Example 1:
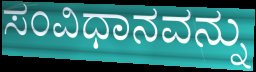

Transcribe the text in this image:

ಸಂವಿಧಾನವನ್ನು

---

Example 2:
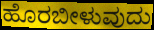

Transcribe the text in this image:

ಹೊರಬೀಳುವುದು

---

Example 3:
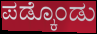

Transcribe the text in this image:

ಪಡ್ಕೊಂಡು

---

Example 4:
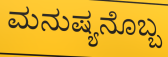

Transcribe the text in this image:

ಮನುಷ್ಯನೊಬ್ಬ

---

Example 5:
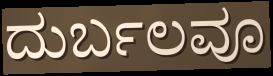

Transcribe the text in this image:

ದುರ್ಬಲವೂ